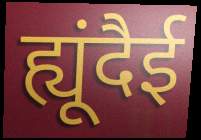
ह्यूंदैई